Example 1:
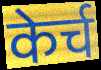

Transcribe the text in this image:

केर्च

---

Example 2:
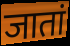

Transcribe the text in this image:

जातां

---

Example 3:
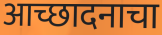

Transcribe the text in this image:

आच्छादनाचा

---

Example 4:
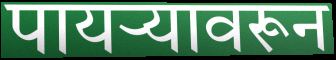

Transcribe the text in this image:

पायऱ्यावरून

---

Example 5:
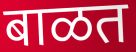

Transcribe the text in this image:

बाळत